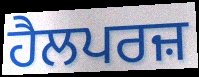
ਹੈਲਪਰਜ਼